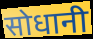
सोधानी